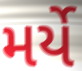
મર્યે